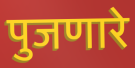
पुजणारे